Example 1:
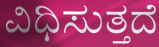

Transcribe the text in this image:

ವಿಧಿಸುತ್ತದೆ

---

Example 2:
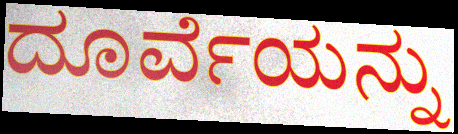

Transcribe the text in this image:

ದೂರ್ವೆಯನ್ನು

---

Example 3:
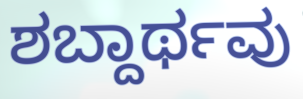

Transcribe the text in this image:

ಶಬ್ದಾರ್ಥವು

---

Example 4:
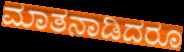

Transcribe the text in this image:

ಮಾತನಾಡಿದರೂ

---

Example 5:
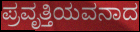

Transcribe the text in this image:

ಪ್ರವೃತ್ತಿಯವನಾದ